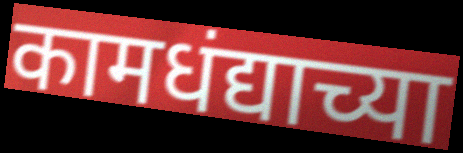
कामधंद्याच्या